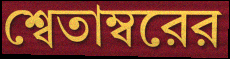
শ্বেতাম্বরের